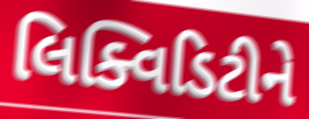
લિક્વિડિટીને